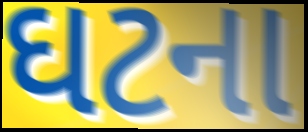
ઘટના